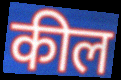
कील